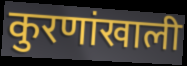
कुरणांखाली